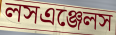
লসএঞ্জেলস